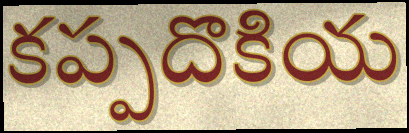
కప్పదొకియ